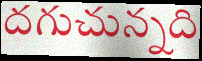
దగుచున్నది